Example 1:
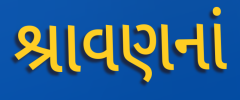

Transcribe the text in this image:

શ્રાવણનાં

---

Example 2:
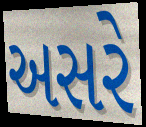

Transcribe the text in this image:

અસરે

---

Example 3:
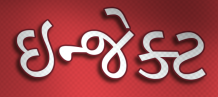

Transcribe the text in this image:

ઇન્જેક્ટ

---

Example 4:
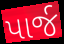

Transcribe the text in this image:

પાર્જ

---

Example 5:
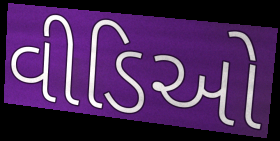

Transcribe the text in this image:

વીડિઓ